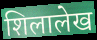
शिलालेख